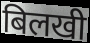
बिलखी